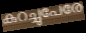
കുറച്ചുപേരേ